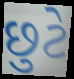
છુટે